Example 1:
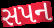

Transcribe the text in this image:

સપન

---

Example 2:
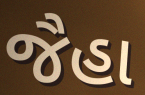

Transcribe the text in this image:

જૈહા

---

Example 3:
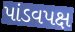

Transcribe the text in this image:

પાંડવપક્ષ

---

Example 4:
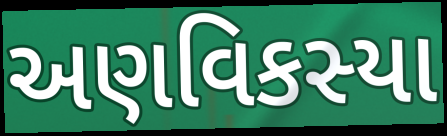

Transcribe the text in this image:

અણવિકસ્યા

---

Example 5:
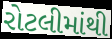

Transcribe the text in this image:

રોટલીમાંથી